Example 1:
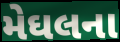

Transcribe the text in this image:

મેઘલના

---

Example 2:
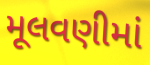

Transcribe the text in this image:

મૂલવણીમાં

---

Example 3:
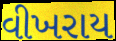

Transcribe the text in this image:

વીખરાય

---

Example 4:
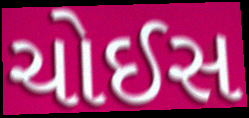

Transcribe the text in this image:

ચોઈસ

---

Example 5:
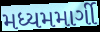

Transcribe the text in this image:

મધ્યમમાર્ગી